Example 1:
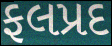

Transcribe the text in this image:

ફલપ્રદ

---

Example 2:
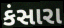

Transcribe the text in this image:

કંસારા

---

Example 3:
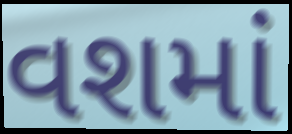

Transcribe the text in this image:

વશમાં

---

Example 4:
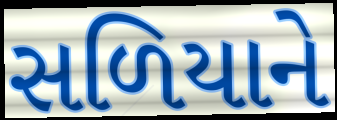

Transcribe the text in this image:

સળિયાને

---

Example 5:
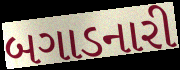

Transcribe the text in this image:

બગાડનારી